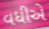
વધીએ